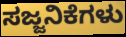
ಸಜ್ಜನಿಕೆಗಳು